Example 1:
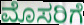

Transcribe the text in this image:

ಮೊಸರಿಗೆ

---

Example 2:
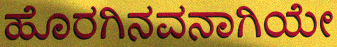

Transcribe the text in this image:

ಹೊರಗಿನವನಾಗಿಯೇ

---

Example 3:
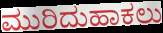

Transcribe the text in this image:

ಮುರಿದುಹಾಕಲು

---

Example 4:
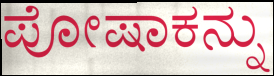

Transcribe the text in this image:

ಪೋಷಾಕನ್ನು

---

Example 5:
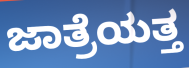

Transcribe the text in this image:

ಜಾತ್ರೆಯತ್ತ